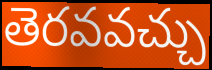
తెరవవచ్చు